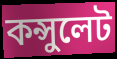
কন্সুলেট